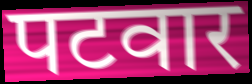
पटवार